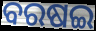
ବରଷଇ